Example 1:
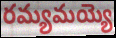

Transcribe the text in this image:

రమ్యమయ్యె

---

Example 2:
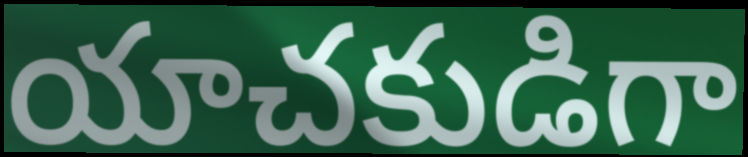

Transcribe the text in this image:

యాచకుడిగా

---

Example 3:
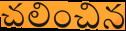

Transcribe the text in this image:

చలించిన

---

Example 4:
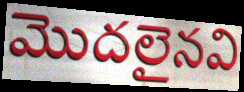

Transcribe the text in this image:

మొదలైనవి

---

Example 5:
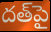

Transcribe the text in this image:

దత్‌పై